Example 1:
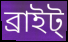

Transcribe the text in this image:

ব্রাইট্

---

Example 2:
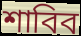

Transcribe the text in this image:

শাবিব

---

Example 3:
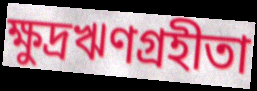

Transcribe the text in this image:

ক্ষুদ্রঋণগ্রহীতা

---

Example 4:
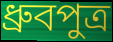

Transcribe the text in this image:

ধ্রুবপুত্র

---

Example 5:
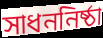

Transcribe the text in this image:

সাধননিষ্ঠা